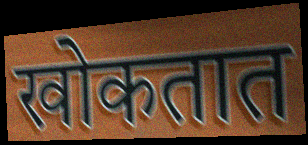
खोकतात